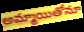
అమ్మాయితోనూ